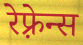
रेफ़्रेन्स